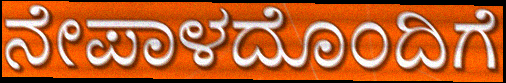
ನೇಪಾಳದೊಂದಿಗೆ